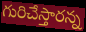
గురిచేస్తారన్న